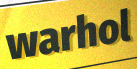
warhol